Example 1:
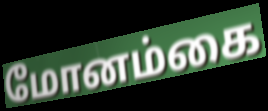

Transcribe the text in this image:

மோனம்கை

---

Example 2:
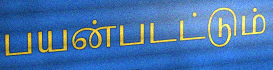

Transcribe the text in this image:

பயன்படட்டும்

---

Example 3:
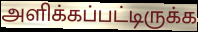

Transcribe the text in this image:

அளிக்கப்பட்டிருக்க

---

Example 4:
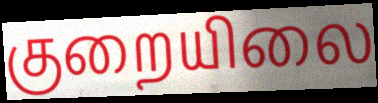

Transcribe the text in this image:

குறையிலை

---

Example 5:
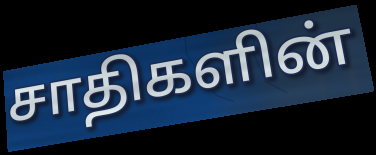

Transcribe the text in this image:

சாதிகளின்